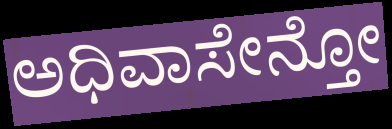
ಅಧಿವಾಸೇನ್ತೋ